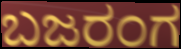
ಬಜರಂಗ